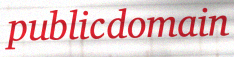
publicdomain